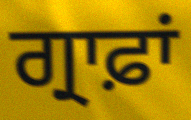
ਗ੍ਰਾਫ਼ਾਂ